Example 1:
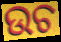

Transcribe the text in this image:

ଉଚ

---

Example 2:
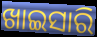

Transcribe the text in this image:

ଖାଇସାରି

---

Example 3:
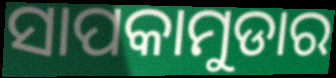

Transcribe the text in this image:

ସାପକାମୁଡାର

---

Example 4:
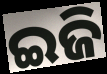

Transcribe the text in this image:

ଇଜି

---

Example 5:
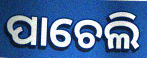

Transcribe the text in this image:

ପାଚେଲି